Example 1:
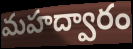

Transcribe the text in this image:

మహద్వారం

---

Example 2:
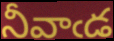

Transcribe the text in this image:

నీవాఁడ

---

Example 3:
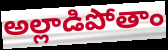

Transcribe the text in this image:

అల్లాడిపోతాం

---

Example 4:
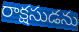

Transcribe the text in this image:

రాక్షసుడను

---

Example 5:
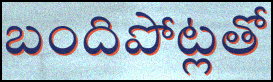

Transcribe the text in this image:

బందిపోట్లతో